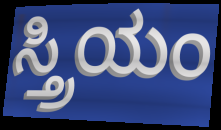
ಸ್ತ್ರಿಯಂ